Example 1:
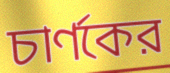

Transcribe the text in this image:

চার্ণকের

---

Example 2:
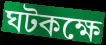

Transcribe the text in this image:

ঘটকক্ষে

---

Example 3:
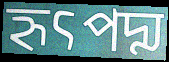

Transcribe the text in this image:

হৃৎপদ্ম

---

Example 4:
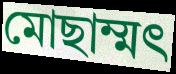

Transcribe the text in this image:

মোছাম্মৎ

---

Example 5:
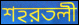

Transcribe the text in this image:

শহরতলী